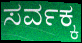
ಸರ್ವಕ್ಕ